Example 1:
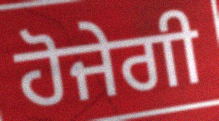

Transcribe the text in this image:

ਹੋਜੇਗੀ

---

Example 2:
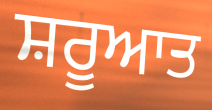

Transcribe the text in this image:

ਸ਼ਰੂਆਤ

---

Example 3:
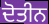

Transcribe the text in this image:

ਦੋਤੀਨ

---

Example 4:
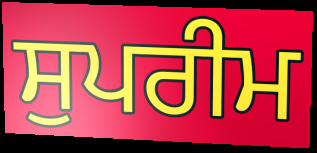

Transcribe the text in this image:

ਸੁਪਰੀਮ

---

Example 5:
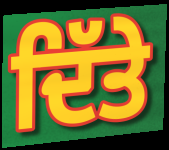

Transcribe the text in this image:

ਦਿੱਤੇ